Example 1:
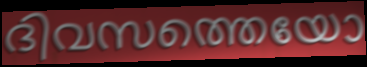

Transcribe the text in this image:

ദിവസത്തെയോ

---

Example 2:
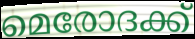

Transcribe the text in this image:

മെരോദക്ക്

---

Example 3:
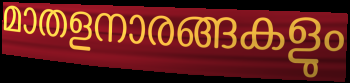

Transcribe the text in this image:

മാതളനാരങ്ങകളും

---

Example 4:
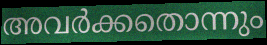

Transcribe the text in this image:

അവർക്കതൊന്നും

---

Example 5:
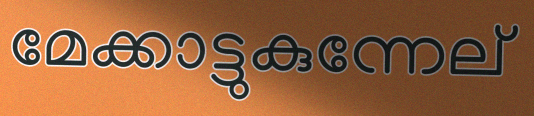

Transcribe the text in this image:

മേക്കാട്ടുകുന്നേല്